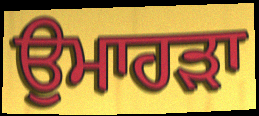
ਉਮਾਹੜਾ